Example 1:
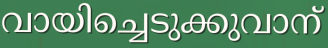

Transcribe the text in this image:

വായിച്ചെടുക്കുവാന്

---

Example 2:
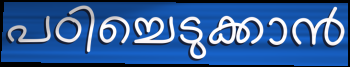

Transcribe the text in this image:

പഠിച്ചെടുക്കാൻ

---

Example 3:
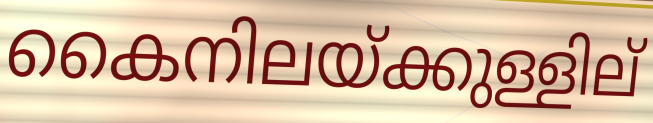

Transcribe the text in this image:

കൈനിലയ്ക്കുള്ളില്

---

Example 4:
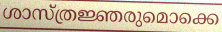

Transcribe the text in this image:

ശാസ്ത്രജ്ഞരുമൊക്കെ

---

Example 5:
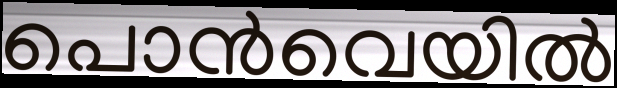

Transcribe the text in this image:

പൊൻവെയിൽ